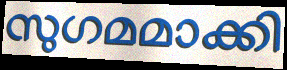
സുഗമമാക്കി